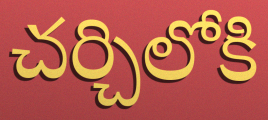
చర్చిలోకి